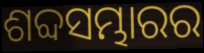
ଶବ୍ଦସମ୍ଭାରର